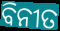
ବିନୀତ